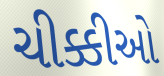
ચીક્કીઓ